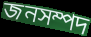
জনসম্পদ